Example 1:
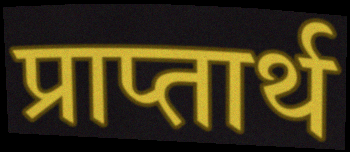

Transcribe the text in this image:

प्राप्तार्थ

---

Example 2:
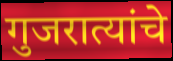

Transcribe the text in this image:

गुजरात्यांचे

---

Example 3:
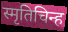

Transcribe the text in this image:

स्मृतिचिन्ह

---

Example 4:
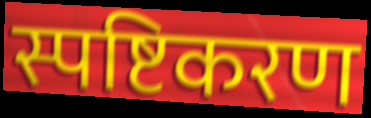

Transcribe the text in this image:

स्पष्टिकरण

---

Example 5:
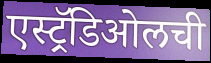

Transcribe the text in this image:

एस्ट्रॅडिओलची